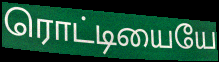
ரொட்டியையே